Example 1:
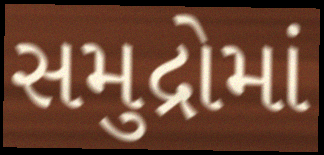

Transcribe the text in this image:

સમુદ્રોમાં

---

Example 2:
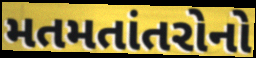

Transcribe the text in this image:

મતમતાંતરોનો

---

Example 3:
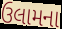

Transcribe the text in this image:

ઉલામના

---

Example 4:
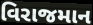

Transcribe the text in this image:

વિરાજમાન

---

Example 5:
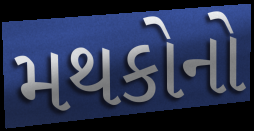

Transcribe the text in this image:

મથકોનો